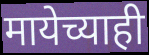
मायेच्याही